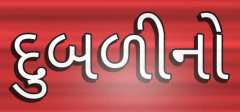
દુબળીનો